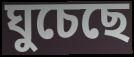
ঘুচেছে